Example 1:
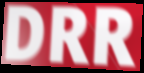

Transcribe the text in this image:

DRR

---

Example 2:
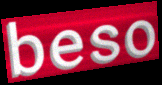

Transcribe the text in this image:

beso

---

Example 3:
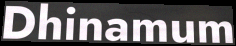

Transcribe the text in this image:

Dhinamum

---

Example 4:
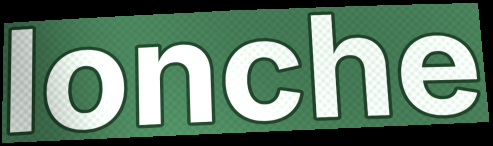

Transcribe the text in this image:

lonche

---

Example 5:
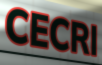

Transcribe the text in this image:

CECRI